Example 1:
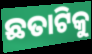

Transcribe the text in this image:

ଛତାଟିକୁ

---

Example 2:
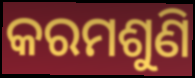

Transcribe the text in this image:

କରମଶୁଣି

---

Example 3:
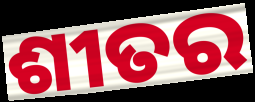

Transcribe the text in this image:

ଶୀତର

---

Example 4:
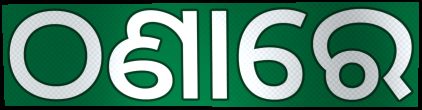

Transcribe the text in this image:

ଠଣାରେ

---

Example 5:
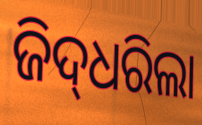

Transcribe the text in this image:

ଜିଦ୍‌ଧରିଲା